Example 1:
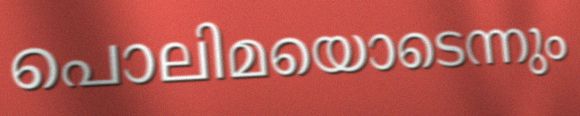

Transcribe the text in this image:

പൊലിമയൊടെന്നും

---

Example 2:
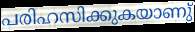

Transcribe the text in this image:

പരിഹസിക്കുകയാണു്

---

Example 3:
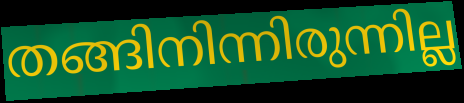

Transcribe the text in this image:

തങ്ങിനിന്നിരുന്നില്ല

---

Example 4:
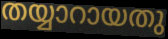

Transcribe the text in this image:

തയ്യാറായതു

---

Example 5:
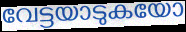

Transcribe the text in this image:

വേട്ടയാടുകയോ